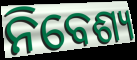
ନିବେଶ୍ୟ